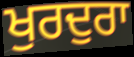
ਖੁਰਦੁਰਾ